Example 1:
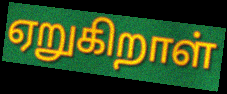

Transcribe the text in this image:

ஏறுகிறாள்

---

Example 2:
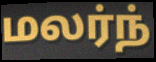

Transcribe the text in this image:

மலர்ந்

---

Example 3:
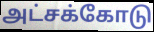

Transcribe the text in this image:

அட்சக்கோடு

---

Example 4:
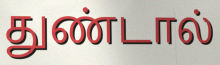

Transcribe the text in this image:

துண்டால்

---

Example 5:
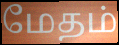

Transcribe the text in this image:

மேதம்